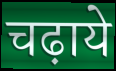
चढ़ाये